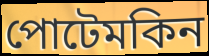
পোটেমকিন